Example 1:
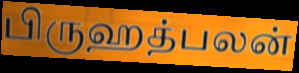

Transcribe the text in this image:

பிருஹத்பலன்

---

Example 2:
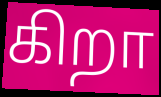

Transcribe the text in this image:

கிறா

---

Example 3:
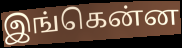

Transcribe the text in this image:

இங்கென்ன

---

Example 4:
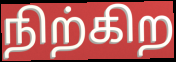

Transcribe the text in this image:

நிற்கிற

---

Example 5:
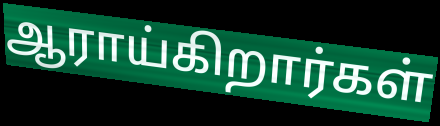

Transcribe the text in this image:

ஆராய்கிறார்கள்